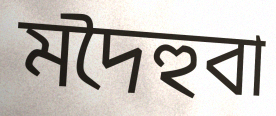
মদৈহুবা